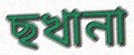
ছখানা